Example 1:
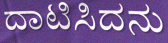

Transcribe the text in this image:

ದಾಟಿಸಿದನು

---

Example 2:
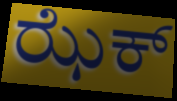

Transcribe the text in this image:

ಝೆಕ್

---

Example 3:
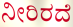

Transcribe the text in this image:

ನೀರಿರದೆ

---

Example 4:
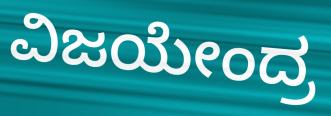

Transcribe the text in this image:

ವಿಜಯೇಂದ್ರ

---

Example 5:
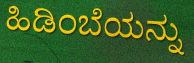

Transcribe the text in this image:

ಹಿಡಿಂಬೆಯನ್ನು